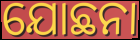
ଯୋଛନା